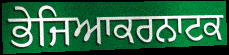
ਭੇਜਿਆਕਰਨਾਟਕ